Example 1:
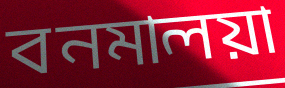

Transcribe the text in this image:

বনমালয়া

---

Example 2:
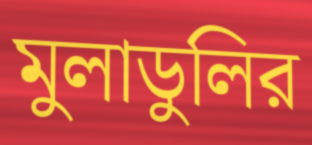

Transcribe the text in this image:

মুলাডুলির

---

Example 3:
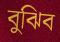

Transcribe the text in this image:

বুঝিব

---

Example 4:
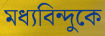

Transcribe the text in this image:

মধ্যবিন্দুকে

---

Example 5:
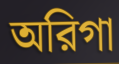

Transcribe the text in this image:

অরিগা